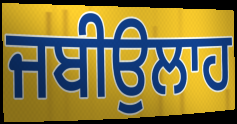
ਜਬੀਉਲਾਹ